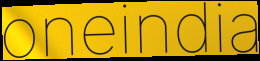
oneindia